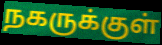
நகருக்குள்